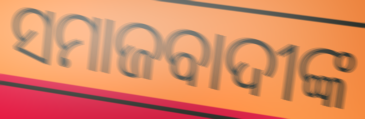
ସମାଜବାଦୀଙ୍କ